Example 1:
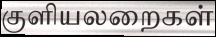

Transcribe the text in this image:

குளியலறைகள்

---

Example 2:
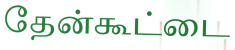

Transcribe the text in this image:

தேன்கூட்டை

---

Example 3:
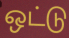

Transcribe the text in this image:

ஒட்டு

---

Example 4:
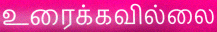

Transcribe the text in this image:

உரைக்கவில்லை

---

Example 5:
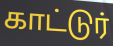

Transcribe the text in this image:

காட்டுர்